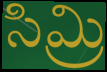
సిమ్రి